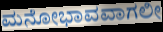
ಮನೋಭಾವವಾಗಲೀ